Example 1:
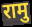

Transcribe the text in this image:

रामु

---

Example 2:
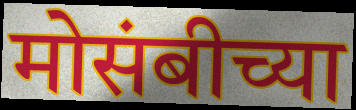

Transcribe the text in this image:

मोसंबीच्या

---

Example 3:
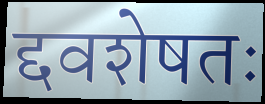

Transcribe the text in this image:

द्दवशेषतः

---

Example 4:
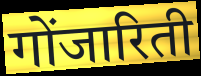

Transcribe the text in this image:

गोंजारिती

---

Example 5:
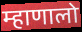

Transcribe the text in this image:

म्हाणालो